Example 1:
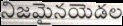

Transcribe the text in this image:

నిజమైనయెడల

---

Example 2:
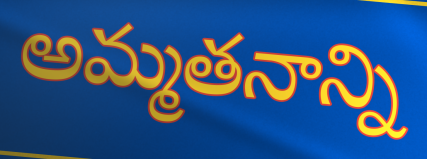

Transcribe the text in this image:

అమ్మతనాన్ని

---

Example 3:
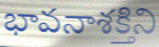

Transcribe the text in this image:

భావనాశక్తిని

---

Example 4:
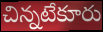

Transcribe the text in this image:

చిన్నటేకూరు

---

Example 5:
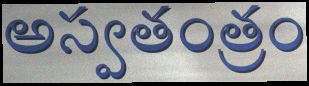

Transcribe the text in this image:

అస్వతంత్రం